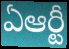
ఏఆర్టీ